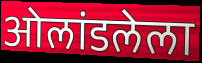
ओलांडलेला